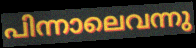
പിന്നാലെവന്നു